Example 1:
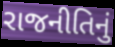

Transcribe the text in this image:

રાજનીતિનું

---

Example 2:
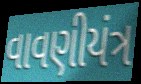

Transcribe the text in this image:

વાવણીયંત્ર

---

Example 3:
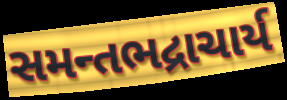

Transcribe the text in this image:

સમન્તભદ્રાચાર્ય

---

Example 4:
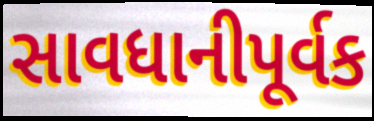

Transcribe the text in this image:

સાવધાનીપૂર્વક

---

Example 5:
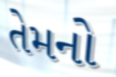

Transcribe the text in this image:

તેમનો